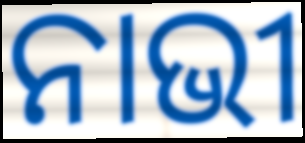
ନାଭୀ